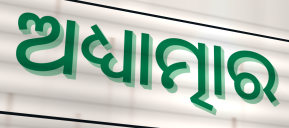
ଅଧ୍ୟାତ୍ମାର